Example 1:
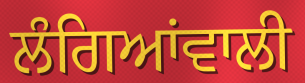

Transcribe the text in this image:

ਲੰਗਿਆਂਵਾਲੀ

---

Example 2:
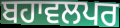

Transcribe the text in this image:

ਬਹਾਵਲਪਰ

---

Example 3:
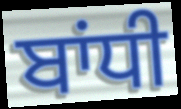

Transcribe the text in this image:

ਬਾਂਧੀ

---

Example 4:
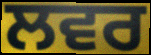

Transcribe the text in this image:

ਲਵਰ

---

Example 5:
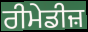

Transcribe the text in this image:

ਰੀਮੇਡੀਜ਼